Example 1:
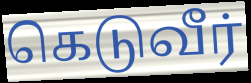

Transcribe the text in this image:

கெடுவீர்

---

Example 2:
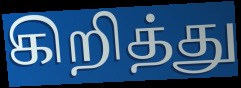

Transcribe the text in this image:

கிறித்து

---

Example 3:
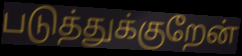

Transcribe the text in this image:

படுத்துக்குறேன்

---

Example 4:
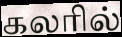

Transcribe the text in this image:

கலரில்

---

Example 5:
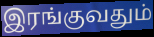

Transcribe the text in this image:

இரங்குவதும்